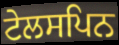
ਟੇਲਸਪਿਨ